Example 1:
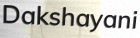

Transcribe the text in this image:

Dakshayani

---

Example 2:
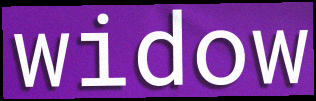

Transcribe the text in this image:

widow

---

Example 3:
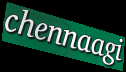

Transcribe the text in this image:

chennaagi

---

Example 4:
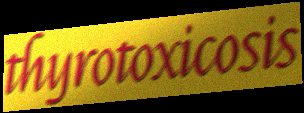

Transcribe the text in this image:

thyrotoxicosis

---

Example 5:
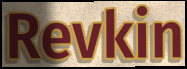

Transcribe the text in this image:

Revkin